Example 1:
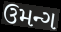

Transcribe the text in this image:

ઉમન્ગ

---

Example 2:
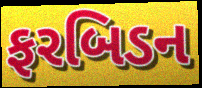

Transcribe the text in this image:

ફરબિડન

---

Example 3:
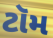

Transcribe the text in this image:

ટૉમ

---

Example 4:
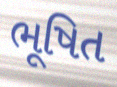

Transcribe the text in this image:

ભૂષિત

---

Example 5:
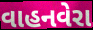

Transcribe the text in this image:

વાહનવેરા